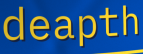
deapth